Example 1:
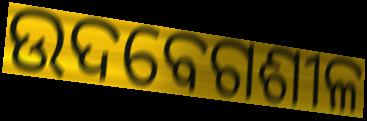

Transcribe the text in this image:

ଉଦବେଗଶୀଳ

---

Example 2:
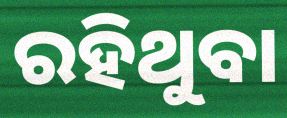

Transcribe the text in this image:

ରହିଥୁବା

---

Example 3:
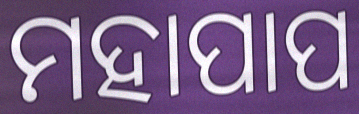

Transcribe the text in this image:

ମହାପାପ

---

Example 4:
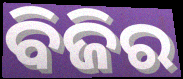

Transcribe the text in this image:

ବିଜିର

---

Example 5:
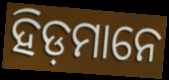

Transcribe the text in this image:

ହିଡ଼ମାନେ